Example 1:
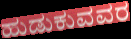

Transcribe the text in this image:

ಹುಡುಕುವವರ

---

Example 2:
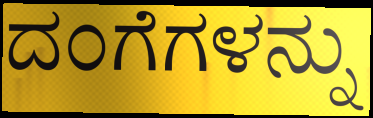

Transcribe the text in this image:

ದಂಗೆಗಳನ್ನು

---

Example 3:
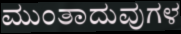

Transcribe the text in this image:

ಮುಂತಾದುವುಗಳ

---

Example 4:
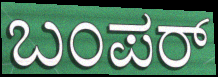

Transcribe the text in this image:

ಬಂಪರ್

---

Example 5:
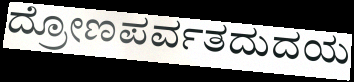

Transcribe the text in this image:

ದ್ರೋಣಪರ್ವತದುದಯ